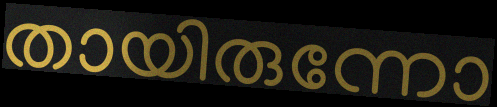
തായിരുന്നോ